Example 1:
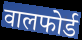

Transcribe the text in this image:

वालफोर्ड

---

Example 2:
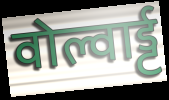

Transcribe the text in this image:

वोल्वार्ड्ट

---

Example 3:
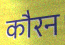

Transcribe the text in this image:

कौरन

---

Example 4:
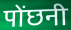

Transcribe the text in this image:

पोंछनी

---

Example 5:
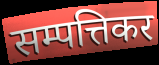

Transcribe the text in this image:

सम्पत्तिकर